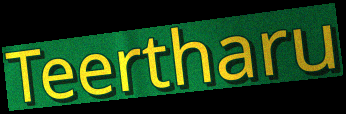
Teertharu